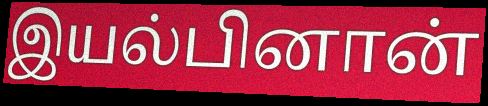
இயல்பினான்